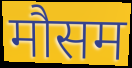
मौसम